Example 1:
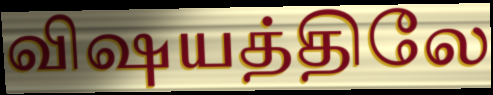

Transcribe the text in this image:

விஷயத்திலே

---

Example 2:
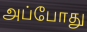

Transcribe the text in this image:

அப்போது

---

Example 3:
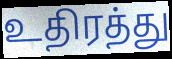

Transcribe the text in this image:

உதிரத்து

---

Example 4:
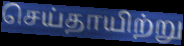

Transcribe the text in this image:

செய்தாயிற்று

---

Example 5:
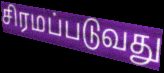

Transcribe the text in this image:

சிரமப்படுவது